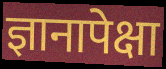
ज्ञानापेक्षा